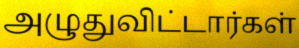
அழுதுவிட்டார்கள்